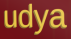
udya